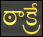
ఠాక్రే